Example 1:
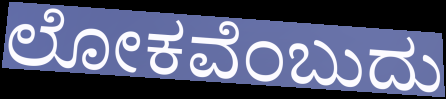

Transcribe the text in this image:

ಲೋಕವೆಂಬುದು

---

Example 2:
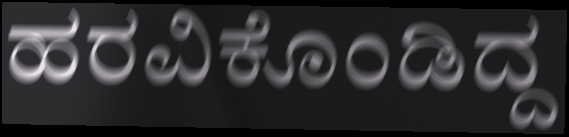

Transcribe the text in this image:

ಹರವಿಕೊಂಡಿದ್ದ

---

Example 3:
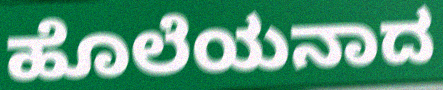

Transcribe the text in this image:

ಹೊಲೆಯನಾದ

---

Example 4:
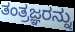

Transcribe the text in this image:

ತಂತ್ರಜ್ಞರನ್ನು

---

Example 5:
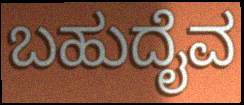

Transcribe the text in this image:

ಬಹುದೈವ